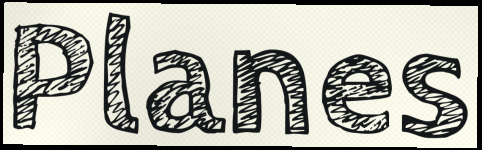
Planes